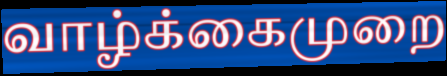
வாழ்க்கைமுறை